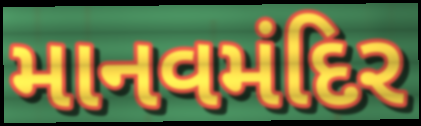
માનવમંદિર